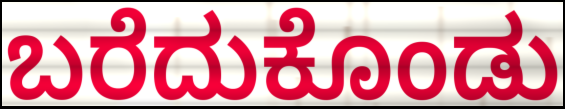
ಬರೆದುಕೊಂಡು